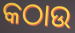
କଠାଉ